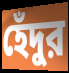
হেঁদুর